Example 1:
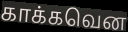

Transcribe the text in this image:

காக்கவென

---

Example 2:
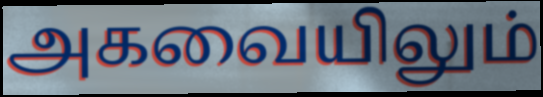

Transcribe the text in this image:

அகவையிலும்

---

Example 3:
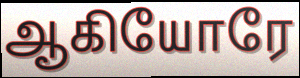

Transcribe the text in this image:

ஆகியோரே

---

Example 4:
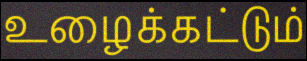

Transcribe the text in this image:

உழைக்கட்டும்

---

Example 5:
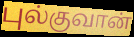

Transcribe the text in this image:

புல்குவான்